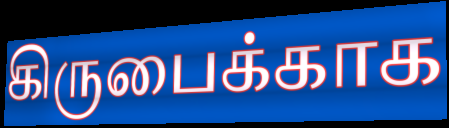
கிருபைக்காக